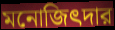
মনোজিৎদার